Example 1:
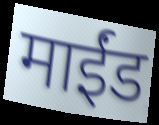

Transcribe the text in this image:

माईंड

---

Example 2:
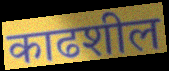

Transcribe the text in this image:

काढशील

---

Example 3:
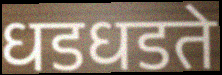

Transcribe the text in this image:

धडधडते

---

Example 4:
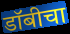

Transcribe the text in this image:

डॉबीचा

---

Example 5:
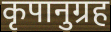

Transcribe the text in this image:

कृपानुग्रह